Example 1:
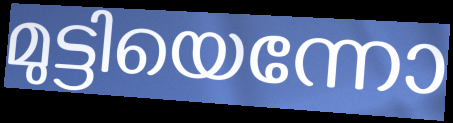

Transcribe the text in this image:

മുട്ടിയെന്നോ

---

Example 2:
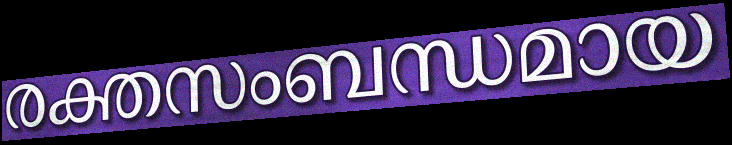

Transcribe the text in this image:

രക്തസംബന്ധമായ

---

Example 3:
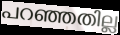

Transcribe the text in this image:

പറഞ്ഞതില്ല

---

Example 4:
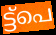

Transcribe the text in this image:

ട്ട്പെ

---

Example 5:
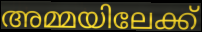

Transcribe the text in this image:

അമ്മയിലേക്ക്